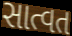
સાત્વત